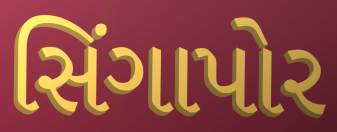
સિંગાપોર